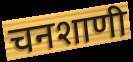
चनशाणी